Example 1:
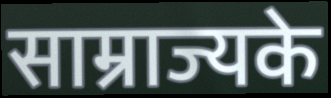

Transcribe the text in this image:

साम्राज्यके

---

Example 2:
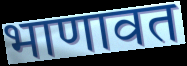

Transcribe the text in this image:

भाणावत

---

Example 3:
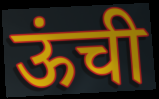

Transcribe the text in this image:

ऊंची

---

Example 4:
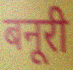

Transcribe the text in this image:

बनूरी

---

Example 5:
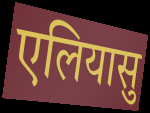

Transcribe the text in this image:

एलियासु